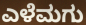
ಎಳೆಮಗು